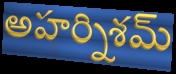
అహర్నిశమ్